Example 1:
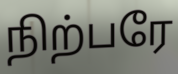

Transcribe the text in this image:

நிற்பரே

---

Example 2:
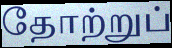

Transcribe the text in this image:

தோற்றுப்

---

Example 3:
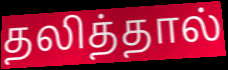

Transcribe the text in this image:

தலித்தால்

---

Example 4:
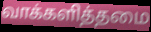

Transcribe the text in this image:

வாக்களித்தமை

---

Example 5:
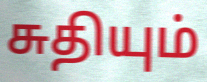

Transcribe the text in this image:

சுதியும்